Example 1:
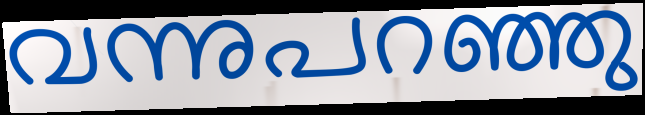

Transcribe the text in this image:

വന്നുപറഞ്ഞു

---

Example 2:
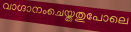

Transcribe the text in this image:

വാഗ്ദാനംചെയ്തതുപോലെ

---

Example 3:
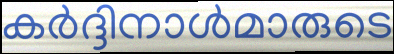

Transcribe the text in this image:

കർദ്ദിനാൾമാരുടെ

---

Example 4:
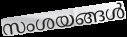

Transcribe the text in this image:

സംശയങ്ങൾ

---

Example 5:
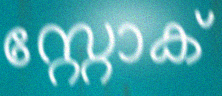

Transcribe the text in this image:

സ്റ്റോക്